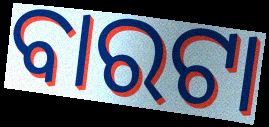
ବାରଟା